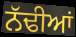
ਨੱਢੀਆਂ